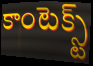
కాంటెక్స్ట్